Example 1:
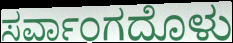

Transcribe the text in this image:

ಸರ್ವಾಂಗದೊಳು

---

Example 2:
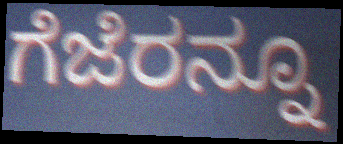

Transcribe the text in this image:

ಗೆಜೆರನ್ನೂ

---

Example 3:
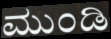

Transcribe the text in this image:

ಮುಂಡಿ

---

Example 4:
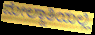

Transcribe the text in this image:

ಮೇಲ್ಜಾತಿಯಲ್ಲಿ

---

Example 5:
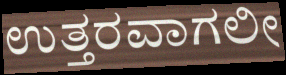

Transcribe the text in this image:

ಉತ್ತರವಾಗಲೀ